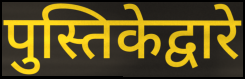
पुस्तिकेद्वारे